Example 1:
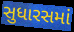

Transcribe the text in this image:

સુધારસમાં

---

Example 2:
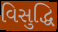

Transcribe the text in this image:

વિસુદ્ધિ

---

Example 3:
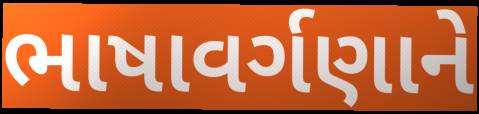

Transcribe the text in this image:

ભાષાવર્ગણાને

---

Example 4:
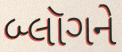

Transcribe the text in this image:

બ્લૉગને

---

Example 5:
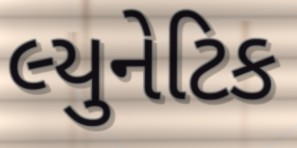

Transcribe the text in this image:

લ્યુનેટિક